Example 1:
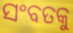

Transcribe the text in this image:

ସଂବତକୁ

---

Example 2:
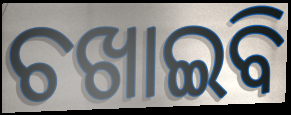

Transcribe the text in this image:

ଚଖାଇବି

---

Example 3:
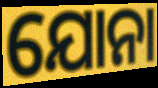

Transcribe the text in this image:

ଯୋନା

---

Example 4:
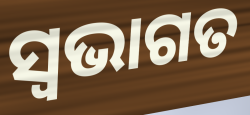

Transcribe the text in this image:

ସ୍ଵଭାଗତ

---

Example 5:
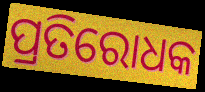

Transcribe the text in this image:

ପ୍ରତିରୋଧକ